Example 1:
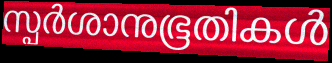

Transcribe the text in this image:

സ്പർശാനുഭൂതികൾ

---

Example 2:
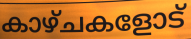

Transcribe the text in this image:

കാഴ്ചകളോട്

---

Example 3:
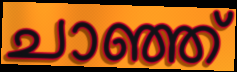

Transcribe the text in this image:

ചാഞ്ഞ്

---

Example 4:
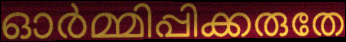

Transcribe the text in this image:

ഓർമ്മിപ്പിക്കരുതേ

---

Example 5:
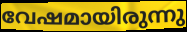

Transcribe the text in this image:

വേഷമായിരുന്നു